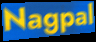
Nagpal